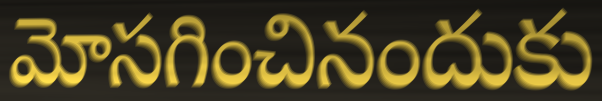
మోసగించినందుకు